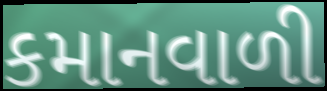
કમાનવાળી